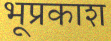
भूप्रकाश